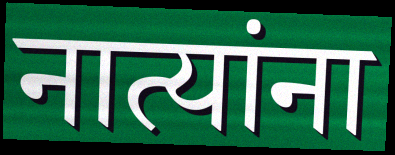
नात्यांना